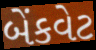
બેંકવેટ